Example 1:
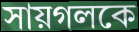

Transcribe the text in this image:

সায়গলকে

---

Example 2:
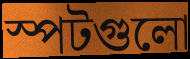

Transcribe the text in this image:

স্পটগুলো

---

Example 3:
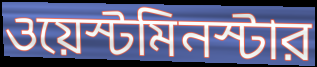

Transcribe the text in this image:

ওয়েস্টমিনস্টার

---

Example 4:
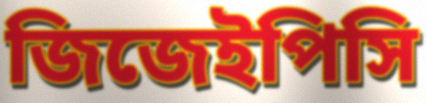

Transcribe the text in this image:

জিজেইপিসি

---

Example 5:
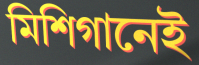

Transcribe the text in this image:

মিশিগানেই